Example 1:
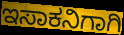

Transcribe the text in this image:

ಇಸಾಕನಿಗಾಗಿ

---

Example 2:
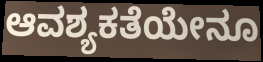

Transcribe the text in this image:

ಆವಶ್ಯಕತೆಯೇನೂ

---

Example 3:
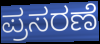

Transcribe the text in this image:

ಪ್ರಸರಣೆ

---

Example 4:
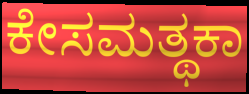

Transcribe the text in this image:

ಕೇಸಮತ್ಥಕಾ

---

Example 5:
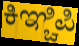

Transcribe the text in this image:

ಕಿಞ್ಚಿಪಿ